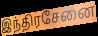
இந்திரசேனை